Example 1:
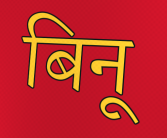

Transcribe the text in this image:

बिनू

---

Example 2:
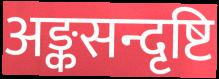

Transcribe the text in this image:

अङ्कसन्दृष्टि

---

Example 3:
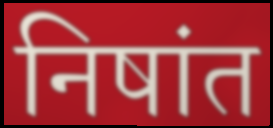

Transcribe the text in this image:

निषांत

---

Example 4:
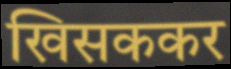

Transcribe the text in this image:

खिसककर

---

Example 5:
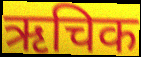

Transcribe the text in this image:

ऋचिक